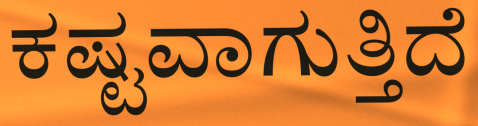
ಕಷ್ಟವಾಗುತ್ತಿದೆ